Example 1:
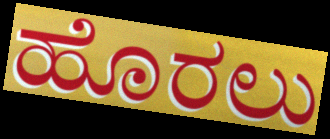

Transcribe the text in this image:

ಹೊರಲು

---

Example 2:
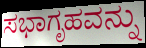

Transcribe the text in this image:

ಸಭಾಗೃಹವನ್ನು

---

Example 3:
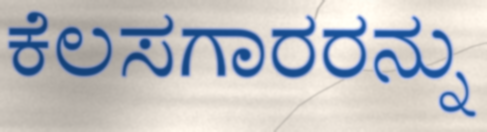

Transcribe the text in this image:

ಕೆಲಸಗಾರರನ್ನು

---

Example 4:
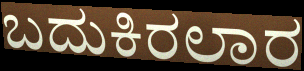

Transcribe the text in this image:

ಬದುಕಿರಲಾರ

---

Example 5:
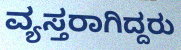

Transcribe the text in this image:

ವ್ಯಸ್ತರಾಗಿದ್ದರು